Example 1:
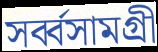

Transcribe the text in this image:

সর্ব্বসামগ্রী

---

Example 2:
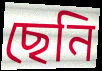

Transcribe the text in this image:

ছেনি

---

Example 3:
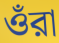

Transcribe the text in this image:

ওঁরা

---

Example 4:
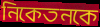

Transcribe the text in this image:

নিকেতনকে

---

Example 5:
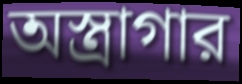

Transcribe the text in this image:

অস্ত্রাগার